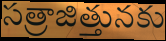
సత్రాజిత్తునకు